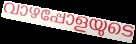
വാഴപ്പോളയുടെ